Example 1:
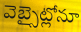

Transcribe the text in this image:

వెబ్సైట్లోనూ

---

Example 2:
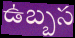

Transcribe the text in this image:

ఉబ్బస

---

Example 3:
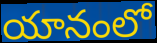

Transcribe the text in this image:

యానంలో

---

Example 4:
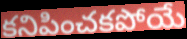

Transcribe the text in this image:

కనిపించకపోయే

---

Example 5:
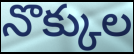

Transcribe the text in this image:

నొక్కుల